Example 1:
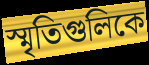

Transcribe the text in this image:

স্মৃতিগুলিকে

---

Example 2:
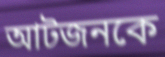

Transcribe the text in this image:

আটজনকে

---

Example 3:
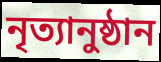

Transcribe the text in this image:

নৃত্যানুষ্ঠান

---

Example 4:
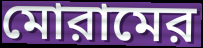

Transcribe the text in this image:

মোরামের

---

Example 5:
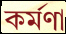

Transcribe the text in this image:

কর্মণা